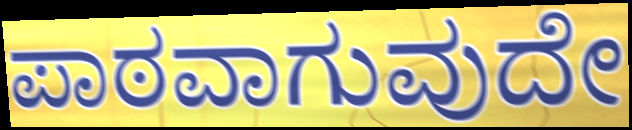
ಪಾಠವಾಗುವುದೇ